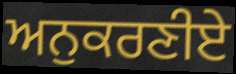
ਅਨੁਕਰਣੀਏ